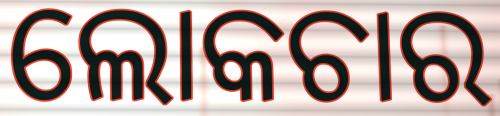
ଲୋକଚାର